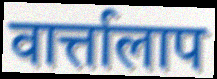
वार्त्तालाप